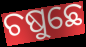
ଚଷୁଛେ